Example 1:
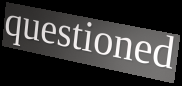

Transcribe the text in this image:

questioned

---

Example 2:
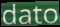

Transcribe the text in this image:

dato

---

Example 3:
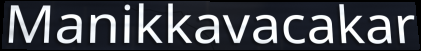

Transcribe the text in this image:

Manikkavacakar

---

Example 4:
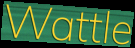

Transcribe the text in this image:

Wattle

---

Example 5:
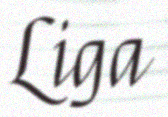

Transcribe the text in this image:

Liga